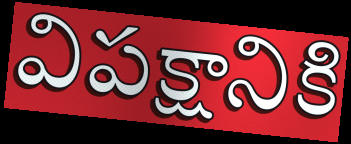
విపక్షానికి